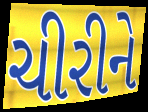
ચીરીને